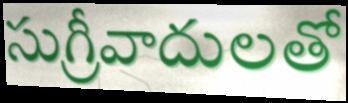
సుగ్రీవాదులతో